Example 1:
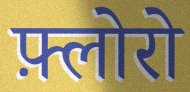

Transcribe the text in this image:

फ़्लोरो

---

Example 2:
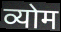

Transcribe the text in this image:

व्योम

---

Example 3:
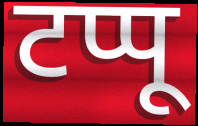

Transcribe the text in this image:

टप्पू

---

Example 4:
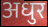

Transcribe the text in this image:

अधुर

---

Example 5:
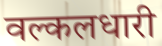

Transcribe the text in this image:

वल्कलधारी